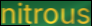
nitrous